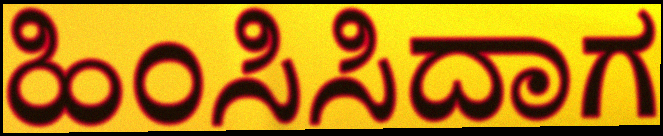
ಹಿಂಸಿಸಿದಾಗ